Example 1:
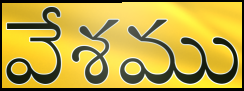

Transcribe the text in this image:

వేశము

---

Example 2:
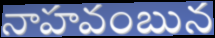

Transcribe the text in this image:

నాహవంబున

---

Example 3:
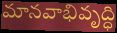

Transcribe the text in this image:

మానవాభివృద్ధి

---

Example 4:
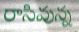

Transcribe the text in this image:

రాసివున్న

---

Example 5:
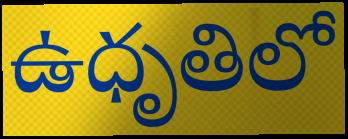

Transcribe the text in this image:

ఉధృతిలో